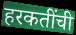
हरकतींची